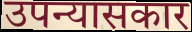
उपन्यासकार